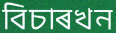
বিচাৰখন